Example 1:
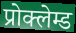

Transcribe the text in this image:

प्रोक्लेम्ड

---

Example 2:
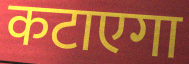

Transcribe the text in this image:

कटाएगा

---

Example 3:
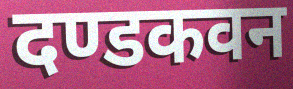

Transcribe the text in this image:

दण्डकवन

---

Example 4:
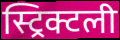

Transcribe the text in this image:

स्ट्रिक्टली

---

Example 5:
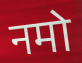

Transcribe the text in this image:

नमो